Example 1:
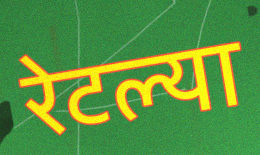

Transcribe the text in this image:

रेटल्या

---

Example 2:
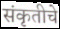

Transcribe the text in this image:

संकृतीचे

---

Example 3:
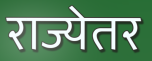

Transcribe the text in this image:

राज्येतर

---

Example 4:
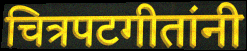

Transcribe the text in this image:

चित्रपटगीतांनी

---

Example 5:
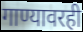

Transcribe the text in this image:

गाण्यावरही